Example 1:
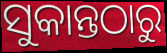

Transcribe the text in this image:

ସୁକାନ୍ତଠାରୁ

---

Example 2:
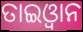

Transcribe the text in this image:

ତାଇଓ୍ୱାନ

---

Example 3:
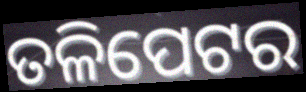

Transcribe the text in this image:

ତଳିପେଟର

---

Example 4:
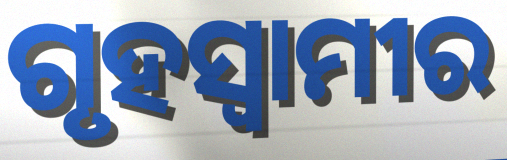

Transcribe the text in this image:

ଗୃହସ୍ୱାମୀର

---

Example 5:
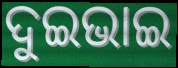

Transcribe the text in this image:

ଦୁଇଭାଇ